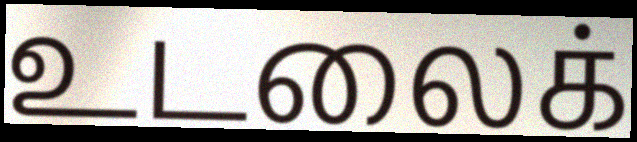
உடலைக்